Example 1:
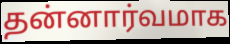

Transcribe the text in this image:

தன்னார்வமாக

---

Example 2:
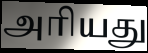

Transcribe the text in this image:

அரியது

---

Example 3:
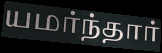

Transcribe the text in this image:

யமர்ந்தார்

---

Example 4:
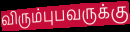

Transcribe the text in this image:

விரும்புபவருக்கு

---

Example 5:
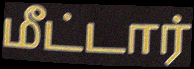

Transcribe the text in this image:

மீட்டார்